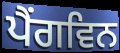
ਪੈਂਗਵਿਨ